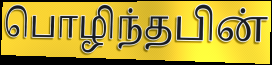
பொழிந்தபின்